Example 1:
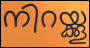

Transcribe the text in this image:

നിറയ്ക്കൂ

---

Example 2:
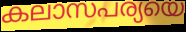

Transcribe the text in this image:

കലാസപര്യയെ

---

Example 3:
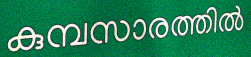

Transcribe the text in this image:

കുമ്പസാരത്തിൽ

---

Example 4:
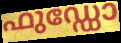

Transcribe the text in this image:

ഫുഡ്ഡോ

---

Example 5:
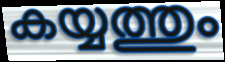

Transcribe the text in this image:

കയ്യത്തും